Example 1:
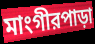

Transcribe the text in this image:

মাংগীরপাড়া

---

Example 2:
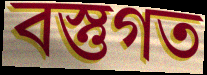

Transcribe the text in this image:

বস্তুগত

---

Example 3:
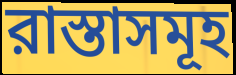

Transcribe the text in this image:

রাস্তাসমূহ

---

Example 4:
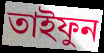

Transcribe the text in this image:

তাইফুন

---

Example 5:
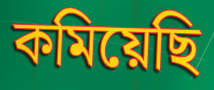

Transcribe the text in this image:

কমিয়েছি